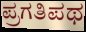
ಪ್ರಗತಿಪಥ